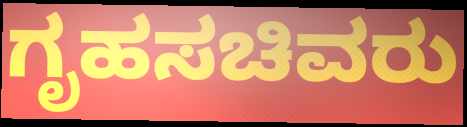
ಗೃಹಸಚಿವರು